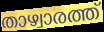
താഴ്വാരത്ത്